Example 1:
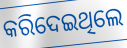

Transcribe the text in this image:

କରିଦେଇଥିଲେ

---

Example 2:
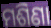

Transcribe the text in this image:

ମଶିଣା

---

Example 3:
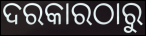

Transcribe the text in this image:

ଦରକାରଠାରୁ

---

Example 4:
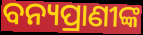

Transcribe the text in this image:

ବନ୍ୟପ୍ରାଣୀଙ୍କ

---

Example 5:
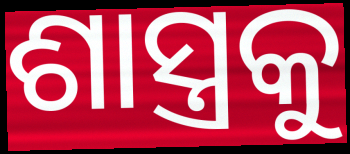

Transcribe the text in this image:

ଶାସ୍ତ୍ରକୁ